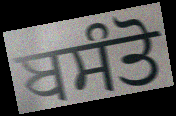
ਬਸੰਤੋ